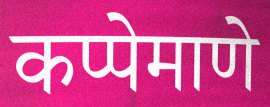
कप्पेमाणे